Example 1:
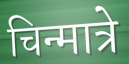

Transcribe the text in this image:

चिन्मात्रे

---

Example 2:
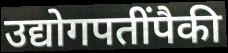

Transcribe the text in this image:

उद्योगपतींपैकी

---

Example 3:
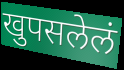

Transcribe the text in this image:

खुपसलेलं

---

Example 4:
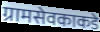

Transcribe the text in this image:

ग्रामसेवकाकडे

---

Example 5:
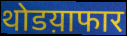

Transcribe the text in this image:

थोडय़ाफार